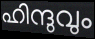
ഹിന്ദുവും